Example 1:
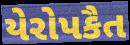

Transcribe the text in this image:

યેરોપકૈત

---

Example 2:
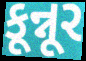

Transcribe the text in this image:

કૂન્નૂર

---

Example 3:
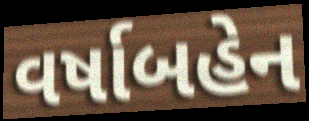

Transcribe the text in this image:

વર્ષાબહેન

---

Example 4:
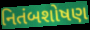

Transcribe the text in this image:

નિતંબશોષણ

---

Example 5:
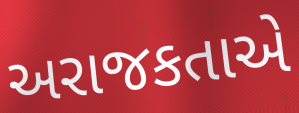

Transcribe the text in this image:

અરાજકતાએ